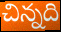
చిన్నది